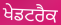
ਖੇਡਟਰੈਕ